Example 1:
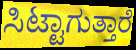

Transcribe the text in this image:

ಸಿಟ್ಟಾಗುತ್ತಾರೆ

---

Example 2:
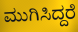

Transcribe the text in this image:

ಮುಗಿಸಿದ್ದರೆ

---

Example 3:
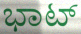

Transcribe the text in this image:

ಭಾಟ್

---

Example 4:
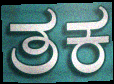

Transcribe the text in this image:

ತಕ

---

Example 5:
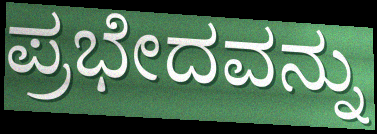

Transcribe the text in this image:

ಪ್ರಭೇದವನ್ನು